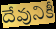
దేవునికీ